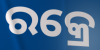
ରକ୍ରେ